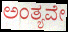
ಅಂತ್ಯವೇ